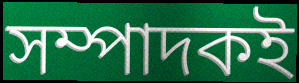
সম্পাদকই